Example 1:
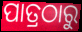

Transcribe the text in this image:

ପାତ୍ରଠାରୁ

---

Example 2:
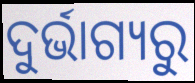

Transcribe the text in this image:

ଦୁର୍ଭାଗ୍ୟରୁ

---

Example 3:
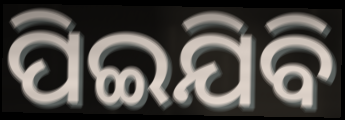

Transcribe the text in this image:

ପିଇଯିବି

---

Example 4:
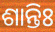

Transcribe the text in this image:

ଶାନ୍ତିଃ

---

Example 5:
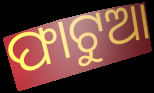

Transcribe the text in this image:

ଫାଟୁଆ